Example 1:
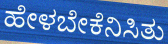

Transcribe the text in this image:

ಹೇಳಬೇಕೆನಿಸಿತು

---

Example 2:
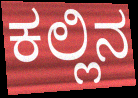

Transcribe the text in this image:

ಕಲ್ಲಿನ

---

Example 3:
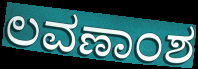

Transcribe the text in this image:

ಲವಣಾಂಶ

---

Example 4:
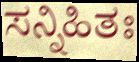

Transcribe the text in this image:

ಸನ್ನಿಹಿತಃ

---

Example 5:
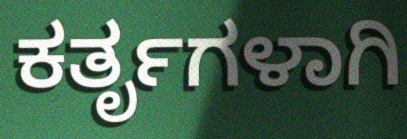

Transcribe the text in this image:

ಕರ್ತೃಗಳಾಗಿ